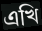
এখি